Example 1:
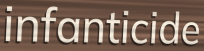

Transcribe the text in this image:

infanticide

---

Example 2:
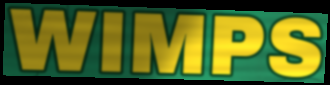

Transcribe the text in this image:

WIMPS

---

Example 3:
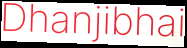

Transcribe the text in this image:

Dhanjibhai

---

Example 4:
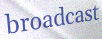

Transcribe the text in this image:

broadcast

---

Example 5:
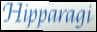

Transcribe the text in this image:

Hipparagi